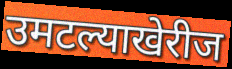
उमटल्याखेरीज